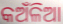
କଅଁଳିଆ